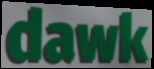
dawk